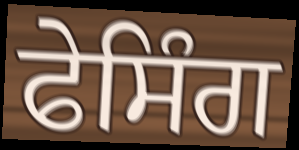
ਫੇਸਿੰਗ